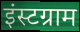
इंस्टग्राम